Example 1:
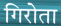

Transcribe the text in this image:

गिरोता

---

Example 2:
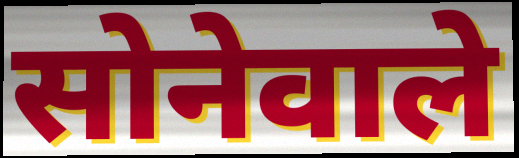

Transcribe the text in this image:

सोनेवाले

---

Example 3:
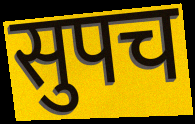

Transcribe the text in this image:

सुपच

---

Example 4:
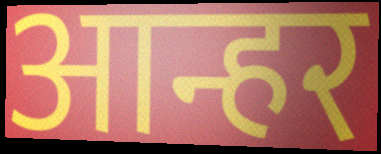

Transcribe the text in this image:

आन्हर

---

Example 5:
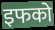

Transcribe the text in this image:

इफको